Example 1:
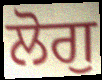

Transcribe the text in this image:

ਲੋਗੁ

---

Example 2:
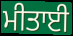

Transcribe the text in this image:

ਮੀਤਾਈ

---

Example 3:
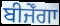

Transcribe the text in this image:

ਬੀਜੇਁਗਾ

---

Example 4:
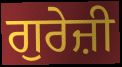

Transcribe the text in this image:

ਗੁਰੇਜ਼ੀ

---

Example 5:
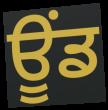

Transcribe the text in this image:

ਊਂਡ